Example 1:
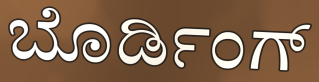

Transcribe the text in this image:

ಬೊರ್ಡಿಂಗ್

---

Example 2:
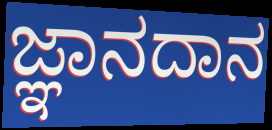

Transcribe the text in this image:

ಜ್ಞಾನದಾನ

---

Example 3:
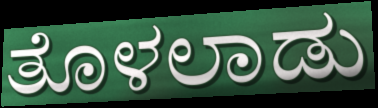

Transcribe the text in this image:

ತೊಳಲಾಡು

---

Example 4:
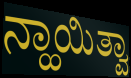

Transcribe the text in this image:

ನ್ಹಾಯಿತ್ವಾ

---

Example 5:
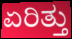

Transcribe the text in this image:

ಏರಿತ್ತು